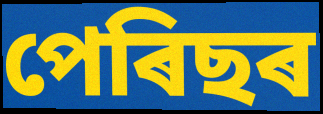
পেৰিছৰ